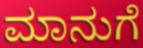
ಮಾನುಗೆ